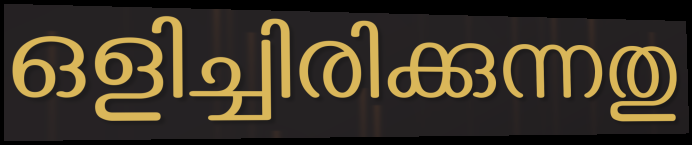
ഒളിച്ചിരിക്കുന്നതു